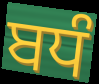
ਬਧੰ